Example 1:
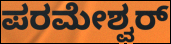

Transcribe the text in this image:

ಪರಮೇಶ್ವರ್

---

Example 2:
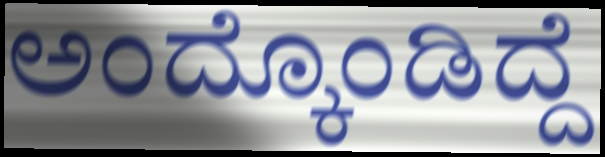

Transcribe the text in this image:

ಅಂದ್ಕೊಂಡಿದ್ದೆ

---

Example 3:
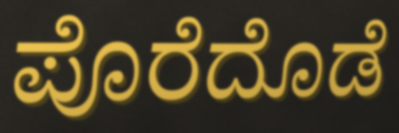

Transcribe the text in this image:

ಪೊರೆದೊಡೆ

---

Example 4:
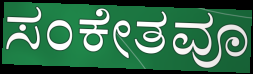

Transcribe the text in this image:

ಸಂಕೇತವೂ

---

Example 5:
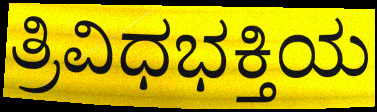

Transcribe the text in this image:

ತ್ರಿವಿಧಭಕ್ತಿಯ